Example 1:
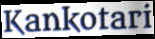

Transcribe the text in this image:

Kankotari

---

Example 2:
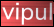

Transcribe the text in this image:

vipul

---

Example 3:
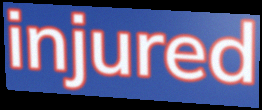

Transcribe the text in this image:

injured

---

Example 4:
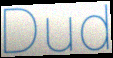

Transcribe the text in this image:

Dud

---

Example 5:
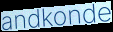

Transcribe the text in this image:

andkonde